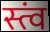
स्त्वं